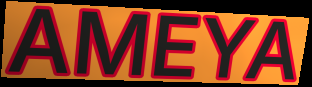
AMEYA